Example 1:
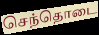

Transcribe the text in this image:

செந்தொடை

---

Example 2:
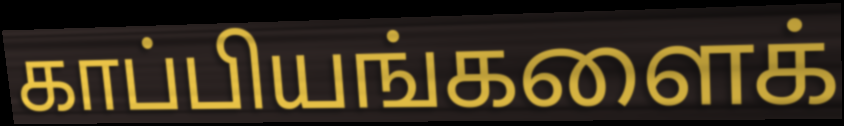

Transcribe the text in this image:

காப்பியங்களைக்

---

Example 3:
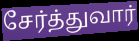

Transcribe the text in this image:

சேர்த்துவார்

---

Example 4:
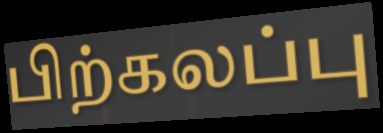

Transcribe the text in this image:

பிற்கலப்பு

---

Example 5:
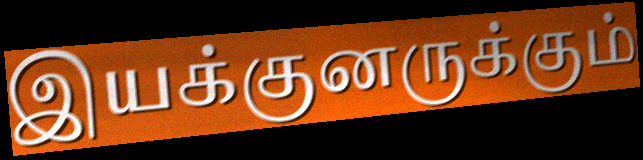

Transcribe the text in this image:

இயக்குனருக்கும்